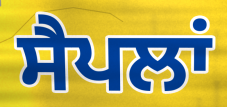
ਸੈਪਲਾਂ